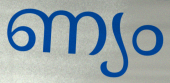
ണ്യം